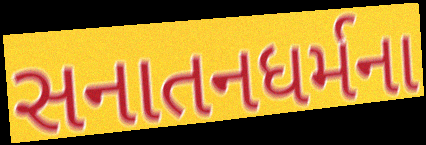
સનાતનધર્મના